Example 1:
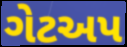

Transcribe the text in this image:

ગેટઅપ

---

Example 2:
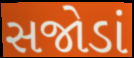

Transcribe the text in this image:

સજોડાં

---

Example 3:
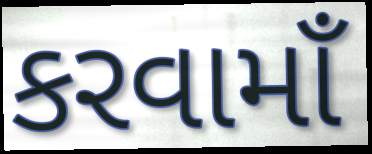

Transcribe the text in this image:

કરવામાઁ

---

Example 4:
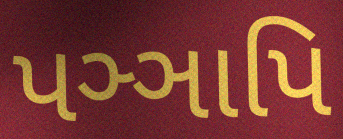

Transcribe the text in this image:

પઞ્ઞાપિ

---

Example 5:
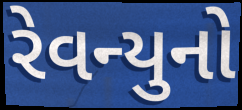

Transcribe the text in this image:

રેવન્યુનો